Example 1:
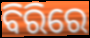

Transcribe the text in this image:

ବିରିରେ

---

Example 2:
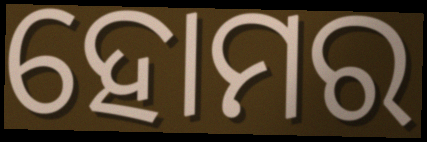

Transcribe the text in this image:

ହୋମର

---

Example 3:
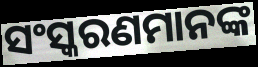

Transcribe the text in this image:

ସଂସ୍କରଣମାନଙ୍କ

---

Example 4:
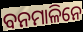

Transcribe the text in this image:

ବନମାଳିନେ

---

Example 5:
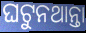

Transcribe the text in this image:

ଘଟୁନଥାନ୍ତା